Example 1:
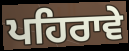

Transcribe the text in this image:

ਪਹਿਰਾਵੇ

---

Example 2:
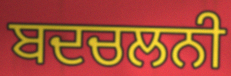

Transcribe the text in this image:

ਬਦਚਲਨੀ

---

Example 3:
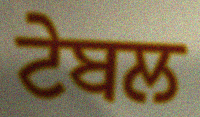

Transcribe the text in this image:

ਟੇਬਲ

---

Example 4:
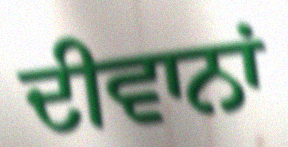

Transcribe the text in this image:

ਦੀਵਾਨਾਂ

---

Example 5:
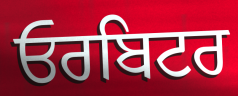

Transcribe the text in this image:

ਓਰਬਿਟਰ